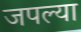
जपल्या